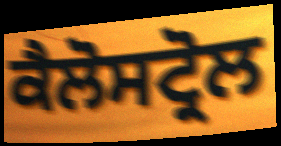
ਕੈਲੋਸਟ੍ਰੋਲ